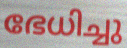
ഭേധിച്ചു